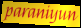
paraniyun